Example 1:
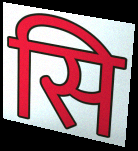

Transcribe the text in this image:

सि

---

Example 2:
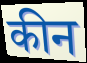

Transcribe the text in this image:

कीन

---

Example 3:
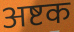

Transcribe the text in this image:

अष्टक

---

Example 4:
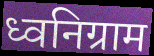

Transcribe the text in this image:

ध्वनिग्राम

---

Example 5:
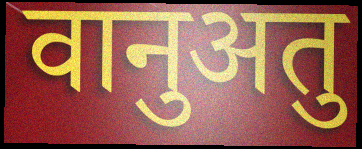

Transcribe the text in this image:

वानुअतु